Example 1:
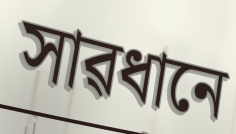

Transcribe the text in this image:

সাৱধানে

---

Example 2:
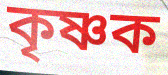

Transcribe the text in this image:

কৃষ্ণক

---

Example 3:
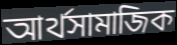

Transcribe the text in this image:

আৰ্থসামাজিক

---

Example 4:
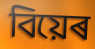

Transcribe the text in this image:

বিয়েৰ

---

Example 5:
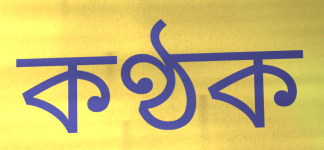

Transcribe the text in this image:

কণ্ঠক